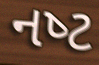
નષ્‍ટ